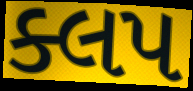
ક્લપ